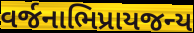
વર્જનાભિપ્રાયજન્ય